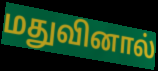
மதுவினால்